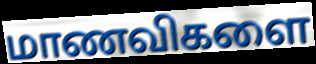
மாணவிகளை